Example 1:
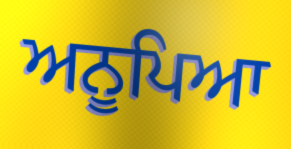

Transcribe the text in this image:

ਅਨੂਪਿਆ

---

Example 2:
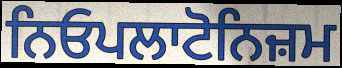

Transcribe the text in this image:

ਨਿਓਪਲਾਟੋਨਿਜ਼ਮ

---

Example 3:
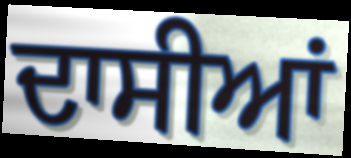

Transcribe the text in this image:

ਦਾਸੀਆਂ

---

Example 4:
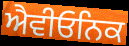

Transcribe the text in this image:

ਐਵੀਓਨਿਕ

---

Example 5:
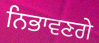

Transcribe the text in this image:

ਨਿਭਾਵਣਗੇ